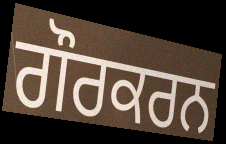
ਗੌਰਕਰਨ